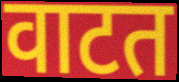
वाटत